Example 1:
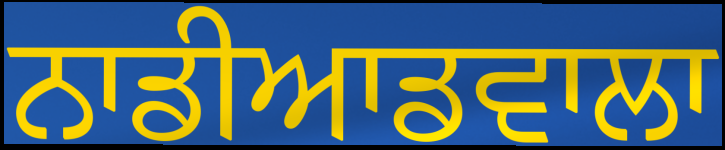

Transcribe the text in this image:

ਨਾਡੀਆਡਵਾਲਾ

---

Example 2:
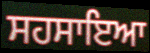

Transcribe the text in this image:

ਸਹਸਾਇਆ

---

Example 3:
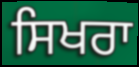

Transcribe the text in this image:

ਸਿਖਰਾ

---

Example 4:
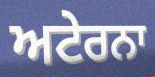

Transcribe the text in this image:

ਅਟੇਰਨਾ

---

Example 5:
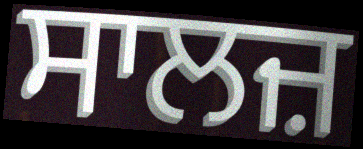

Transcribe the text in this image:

ਸਾਲਜ਼